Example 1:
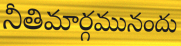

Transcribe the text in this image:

నీతిమార్గమునందు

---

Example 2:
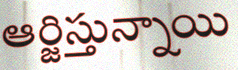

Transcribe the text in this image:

ఆర్జిస్తున్నాయి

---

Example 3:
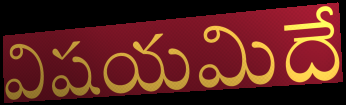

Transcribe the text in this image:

విషయమిదే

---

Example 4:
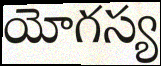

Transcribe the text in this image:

యోగస్య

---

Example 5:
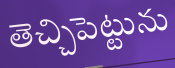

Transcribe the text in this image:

తెచ్చిపెట్టును